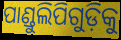
ପାଣ୍ଡୁଲିପିଗୁଡ଼ିକୁ